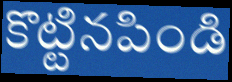
కొట్టినపిండి